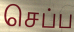
செப்ப